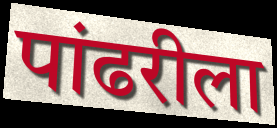
पांढरीला